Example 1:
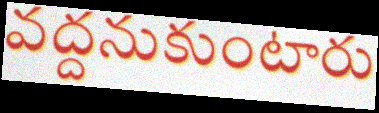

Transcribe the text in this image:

వద్దనుకుంటారు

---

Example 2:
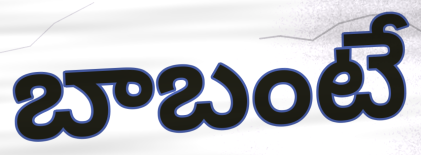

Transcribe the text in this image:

బాబంటే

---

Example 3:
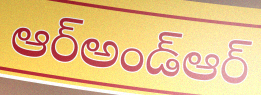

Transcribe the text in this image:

ఆర్అండ్ఆర్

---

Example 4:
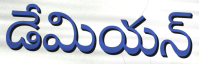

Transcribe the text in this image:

డేమియన్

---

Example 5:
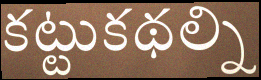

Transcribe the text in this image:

కట్టుకథల్ని